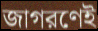
জাগরণেই